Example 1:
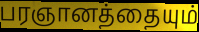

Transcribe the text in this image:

பரஞானத்தையும்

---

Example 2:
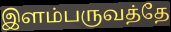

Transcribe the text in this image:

இளம்பருவத்தே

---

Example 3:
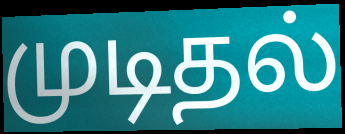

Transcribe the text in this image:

முடிதல்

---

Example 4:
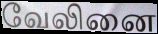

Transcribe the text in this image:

வேலினை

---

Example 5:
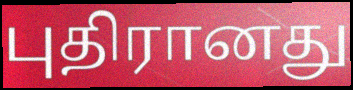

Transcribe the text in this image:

புதிரானது